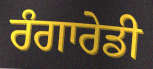
ਰੰਗਾਰੇਡੀ